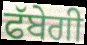
ਫੱਬੇਗੀ